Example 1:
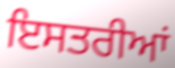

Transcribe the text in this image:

ਇਸਤਰੀਆਂ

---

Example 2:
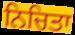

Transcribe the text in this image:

ਨਿਚਿਤਾ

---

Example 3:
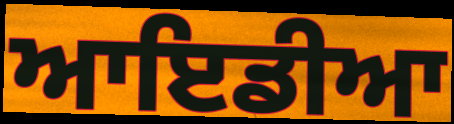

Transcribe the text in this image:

ਆਇਡੀਆ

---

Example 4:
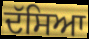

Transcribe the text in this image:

ਦੱਸਿਆ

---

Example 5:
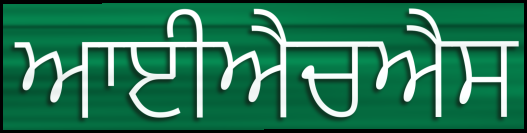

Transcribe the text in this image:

ਆਈਐਚਐਸ